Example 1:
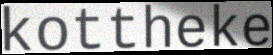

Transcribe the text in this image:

kottheke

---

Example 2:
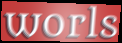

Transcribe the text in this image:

worls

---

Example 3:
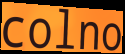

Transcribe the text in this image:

colno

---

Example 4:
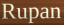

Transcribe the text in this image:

Rupan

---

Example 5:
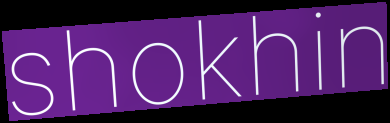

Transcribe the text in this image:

shokhin